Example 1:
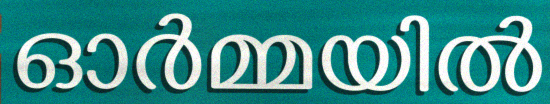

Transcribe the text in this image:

ഓർമ്മയിൽ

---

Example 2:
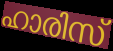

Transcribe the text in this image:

ഹാരിസ്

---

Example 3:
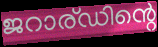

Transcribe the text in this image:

ജറാര്ഡിന്റെ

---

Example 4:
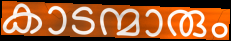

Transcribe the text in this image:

കാടന്മാരും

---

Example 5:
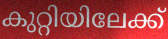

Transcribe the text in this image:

കുറ്റിയിലേക്ക്